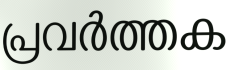
പ്രവർത്തക